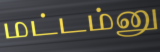
மட்டம்னு